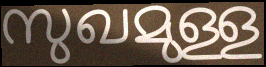
സുഖമുള്ള